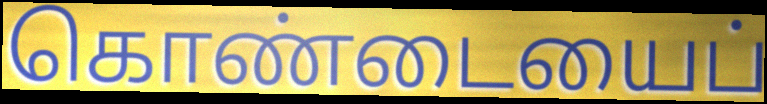
கொண்டையைப்